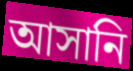
আসানি